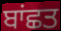
ਬਾਂਛਤ